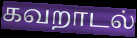
கவறாடல்